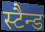
स्टैन्ड